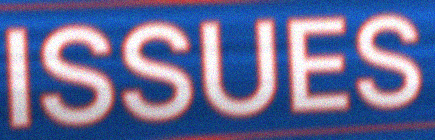
ISSUES